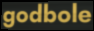
godbole